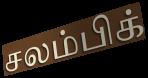
சலம்பிக்